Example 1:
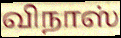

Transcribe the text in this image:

விநாஸ்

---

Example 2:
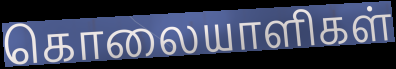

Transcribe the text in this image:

கொலையாளிகள்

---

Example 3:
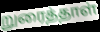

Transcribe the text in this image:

றுரைத்தாள்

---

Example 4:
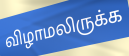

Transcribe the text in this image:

விழாமலிருக்க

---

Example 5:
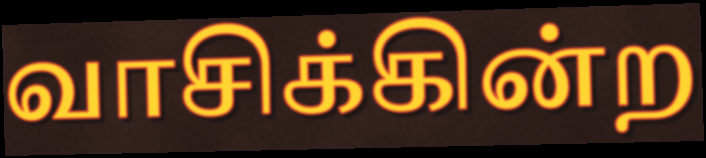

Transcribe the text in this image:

வாசிக்கின்ற